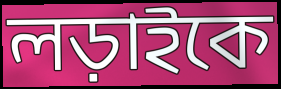
লড়াইকে